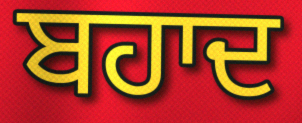
ਬਹਾਦ